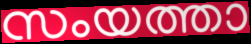
സംയത്താ